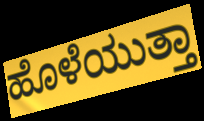
ಹೊಳೆಯುತ್ತಾ